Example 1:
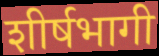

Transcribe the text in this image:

शीर्षभागी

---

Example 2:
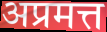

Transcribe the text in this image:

अप्रमत्त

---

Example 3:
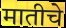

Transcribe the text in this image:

मातीचे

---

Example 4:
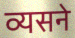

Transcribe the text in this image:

व्यसने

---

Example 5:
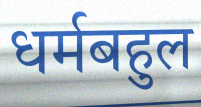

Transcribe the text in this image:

धर्मबहुल